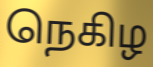
நெகிழ